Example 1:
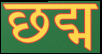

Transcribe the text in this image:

छद्म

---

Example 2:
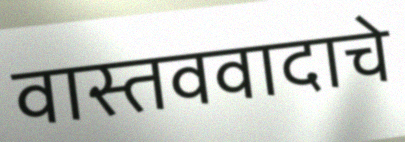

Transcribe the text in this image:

वास्तववादाचे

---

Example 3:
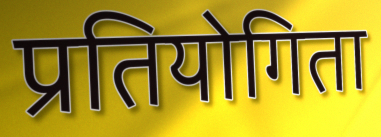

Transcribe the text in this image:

प्रतियोगिता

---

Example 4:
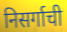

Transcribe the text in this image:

निसर्गाची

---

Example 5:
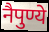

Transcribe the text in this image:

नैपुण्ये